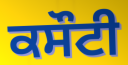
ਕਸੌਟੀ